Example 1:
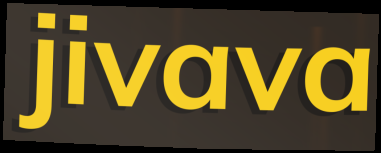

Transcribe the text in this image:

jivava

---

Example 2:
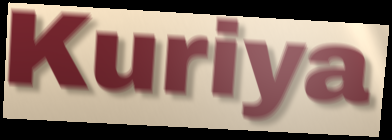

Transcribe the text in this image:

Kuriya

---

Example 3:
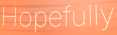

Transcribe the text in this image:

Hopefully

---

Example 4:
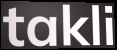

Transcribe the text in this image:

takli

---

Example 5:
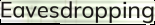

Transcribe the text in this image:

Eavesdropping